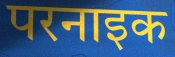
परनाइक